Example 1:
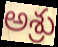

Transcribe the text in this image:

అశ్రు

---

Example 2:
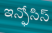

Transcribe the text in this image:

ఇన్ఫోసిస్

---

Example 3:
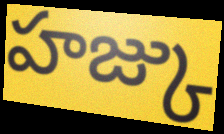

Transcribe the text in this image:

హజ్కు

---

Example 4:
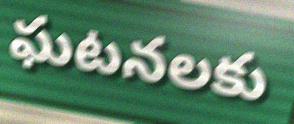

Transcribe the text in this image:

ఘటనలకు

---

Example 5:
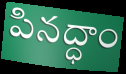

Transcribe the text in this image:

పినద్ధాం